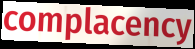
complacency